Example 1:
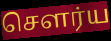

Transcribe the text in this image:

சௌர்ய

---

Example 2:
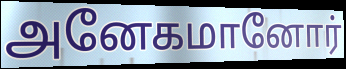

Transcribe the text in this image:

அனேகமானோர்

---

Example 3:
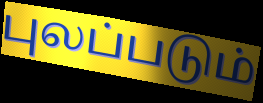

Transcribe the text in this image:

புலப்படும்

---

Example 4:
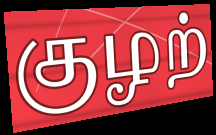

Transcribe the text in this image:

குழற்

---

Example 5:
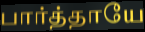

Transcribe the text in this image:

பார்த்தாயே